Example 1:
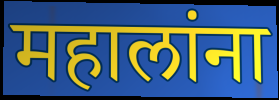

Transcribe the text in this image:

महालांना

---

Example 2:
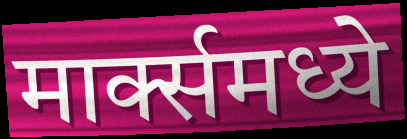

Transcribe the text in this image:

मार्क्समध्ये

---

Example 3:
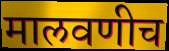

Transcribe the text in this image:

मालवणीच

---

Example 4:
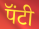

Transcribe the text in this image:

पॅंटी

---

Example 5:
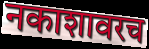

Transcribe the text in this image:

नकाशावरच